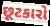
છૂટકારો